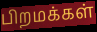
பிறமக்கள்